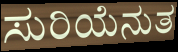
ಸುರಿಯೆನುತ